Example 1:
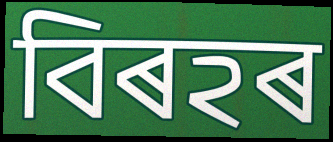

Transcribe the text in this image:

বিৰহৰ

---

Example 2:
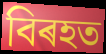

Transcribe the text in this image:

বিৰহত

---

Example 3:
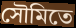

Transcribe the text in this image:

সৌমিতে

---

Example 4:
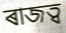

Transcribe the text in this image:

ৰাজত্ব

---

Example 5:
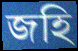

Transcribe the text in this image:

জহি